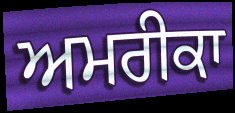
ਅਮਰੀਕਾ